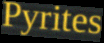
Pyrites